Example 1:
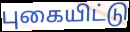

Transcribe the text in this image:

புகையிட்டு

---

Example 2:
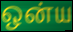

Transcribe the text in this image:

ஒன்ய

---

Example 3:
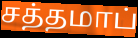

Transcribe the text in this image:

சத்தமாப்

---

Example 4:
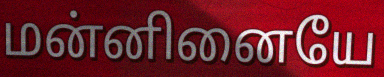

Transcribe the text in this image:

மன்னினையே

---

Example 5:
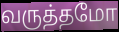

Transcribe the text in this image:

வருத்தமோ